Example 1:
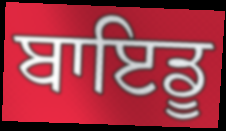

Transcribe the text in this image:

ਬਾਇਡੂ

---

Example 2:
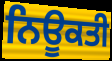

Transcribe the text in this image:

ਨਿਊਕਤੀ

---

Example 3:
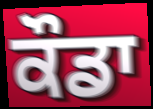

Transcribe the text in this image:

ਕੌਡਾ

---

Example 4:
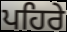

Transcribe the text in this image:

ਪਹਿਰੇ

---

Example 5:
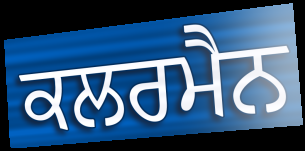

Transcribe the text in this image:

ਕਲਰਮੈਨ